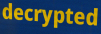
decrypted